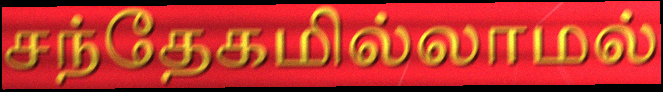
சந்தேகமில்லாமல்